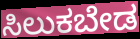
ಸಿಲುಕಬೇಡ